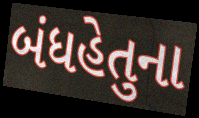
બંધહેતુના